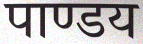
पाण्डय